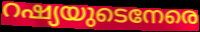
റഷ്യയുടെനേരെ